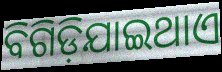
ବିଗିଡ଼ିଯାଇଥାଏ